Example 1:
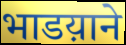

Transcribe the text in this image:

भाडय़ाने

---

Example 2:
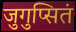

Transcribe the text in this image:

जुगुप्सितं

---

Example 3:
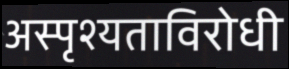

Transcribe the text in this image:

अस्पृश्यताविरोधी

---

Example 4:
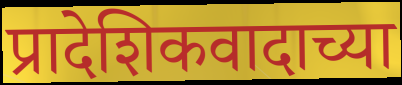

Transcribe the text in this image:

प्रादेशिकवादाच्या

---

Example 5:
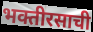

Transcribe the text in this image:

भक्तीरसाची